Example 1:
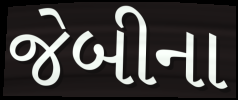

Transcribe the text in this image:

જેબીના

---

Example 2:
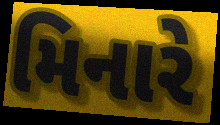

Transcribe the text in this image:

મિનારે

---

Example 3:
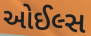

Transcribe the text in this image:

ઓઈલ્સ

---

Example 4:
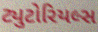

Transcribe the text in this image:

ટ્યુટોરિયલ્સ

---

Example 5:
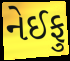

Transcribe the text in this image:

નેઈફુ